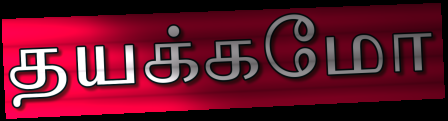
தயக்கமோ